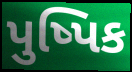
પુષ્પિક